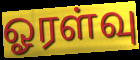
ஓரள்வு